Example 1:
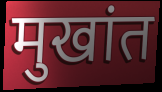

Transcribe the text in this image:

मुखांत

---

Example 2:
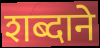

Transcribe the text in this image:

शब्दाने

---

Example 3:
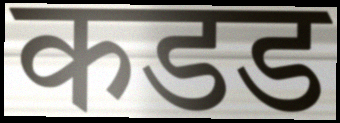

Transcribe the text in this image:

कडड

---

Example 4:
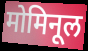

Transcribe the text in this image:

मोमिनूल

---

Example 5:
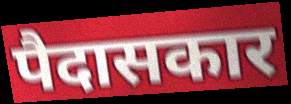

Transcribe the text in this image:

पैदासकार